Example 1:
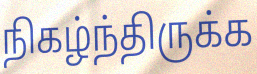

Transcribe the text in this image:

நிகழ்ந்திருக்க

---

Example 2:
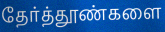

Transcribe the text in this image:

தேர்த்தூண்களை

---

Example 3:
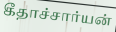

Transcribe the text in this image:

கீதாச்சார்யன்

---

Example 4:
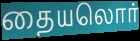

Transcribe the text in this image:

தையலொர்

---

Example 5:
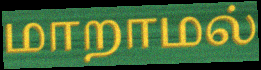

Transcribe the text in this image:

மாறாமல்